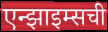
एन्झाइम्सची